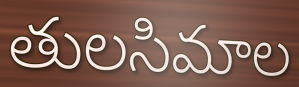
తులసిమాల